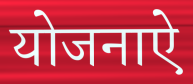
योजनाऐ